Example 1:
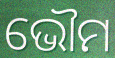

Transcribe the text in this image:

ଭୌମ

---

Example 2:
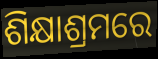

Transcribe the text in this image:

ଶିକ୍ଷାଶ୍ରମରେ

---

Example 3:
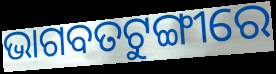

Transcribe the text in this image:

ଭାଗବତଟୁଙ୍ଗୀରେ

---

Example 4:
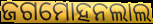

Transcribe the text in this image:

ଜଗମୋହନଲାଲ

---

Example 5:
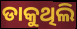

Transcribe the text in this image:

ଡାକୁଥିଲି